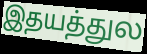
இதயத்துல